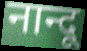
नान्दू